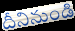
దీనినుండి